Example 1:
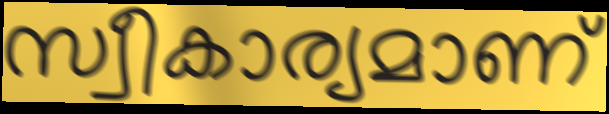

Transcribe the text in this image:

സ്വീകാര്യമാണ്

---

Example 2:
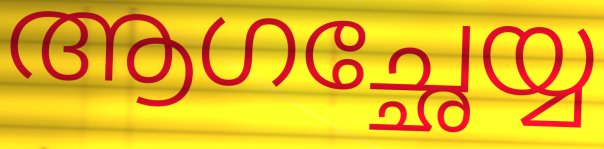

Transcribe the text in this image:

ആഗച്ഛേയ്യ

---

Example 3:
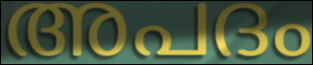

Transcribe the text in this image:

അപദം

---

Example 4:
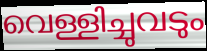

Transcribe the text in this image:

വെള്ളിച്ചുവടും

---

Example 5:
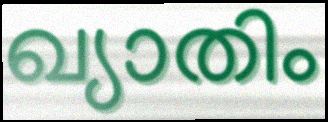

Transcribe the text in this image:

ഖ്യാതിം